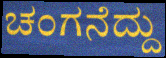
ಚಂಗನೆದ್ದು